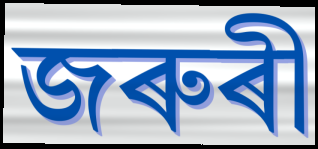
জৰুৰী